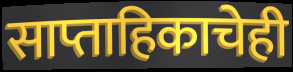
साप्ताहिकाचेही